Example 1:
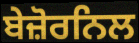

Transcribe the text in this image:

ਬੇਜ਼ੋਰਨਿਲ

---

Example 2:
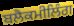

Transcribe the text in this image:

ਬਲੈਕਮੀਲਿੰਗ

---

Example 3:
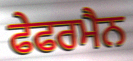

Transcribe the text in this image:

ਫੇਫਰਮੈਨ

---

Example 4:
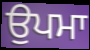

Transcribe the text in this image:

ਉਪਮਾ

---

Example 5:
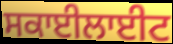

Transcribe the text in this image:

ਸਕਾਈਲਾਈਟ